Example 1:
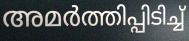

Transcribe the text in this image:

അമർത്തിപ്പിടിച്ച്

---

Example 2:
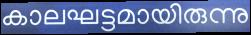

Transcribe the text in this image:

കാലഘട്ടമായിരുന്നു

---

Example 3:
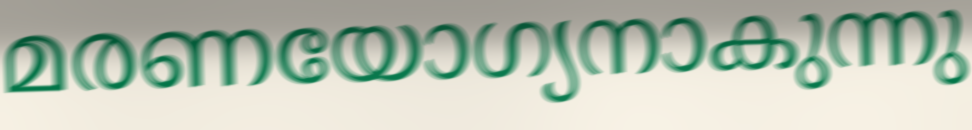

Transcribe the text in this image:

മരണയോഗ്യനാകുന്നു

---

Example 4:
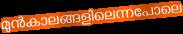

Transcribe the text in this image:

മുൻകാലങ്ങളിലെന്നപോലെ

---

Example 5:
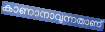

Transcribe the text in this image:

കാണാനാവുന്നതാണ്